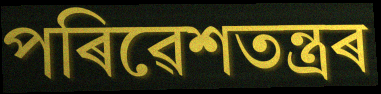
পৰিৱেশতন্ত্ৰৰ